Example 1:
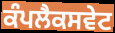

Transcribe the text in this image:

ਕੰਪਲੈਕਸਵੇਟ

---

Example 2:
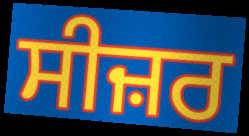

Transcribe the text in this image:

ਸੀਜ਼ਰ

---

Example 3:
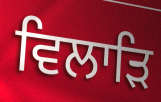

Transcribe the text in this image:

ਵਿਲਾੜਿ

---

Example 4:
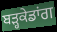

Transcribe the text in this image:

ਬੜ੍ਹਕੇਡਾਂਗ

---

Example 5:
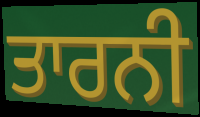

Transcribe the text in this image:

ਤਾਰਨੀ